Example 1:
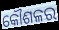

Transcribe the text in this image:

କୌଶଳର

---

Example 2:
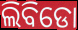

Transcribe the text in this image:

ଲିବିଡୋ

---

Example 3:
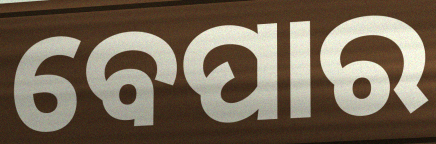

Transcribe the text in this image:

ବେପାର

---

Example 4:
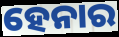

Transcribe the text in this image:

ହେନାର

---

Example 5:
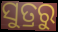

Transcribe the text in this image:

ସୁତ୍ରରୁ